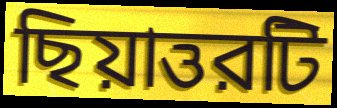
ছিয়াত্তরটি